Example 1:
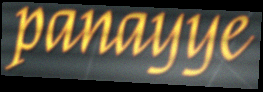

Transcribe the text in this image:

panayye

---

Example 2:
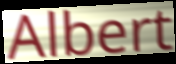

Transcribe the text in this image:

Albert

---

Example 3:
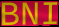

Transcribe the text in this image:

BNI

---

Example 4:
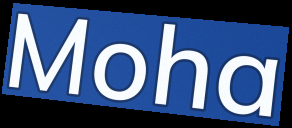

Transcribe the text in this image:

Moha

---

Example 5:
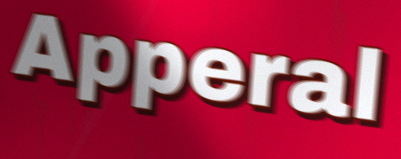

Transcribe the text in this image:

Apperal